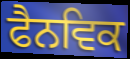
ਫੈਨਵਿਕ